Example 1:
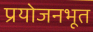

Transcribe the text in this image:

प्रयोजनभूत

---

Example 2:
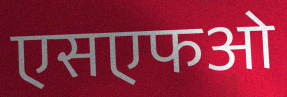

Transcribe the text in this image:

एसएफओ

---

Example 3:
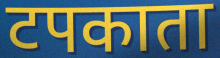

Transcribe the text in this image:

टपकाता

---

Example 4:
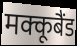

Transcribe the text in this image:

मक्कूबैंड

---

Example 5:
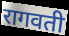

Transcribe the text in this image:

रागवती